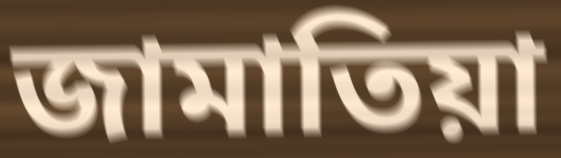
জামাতিয়া